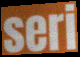
seri